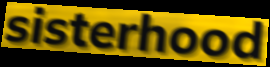
sisterhood